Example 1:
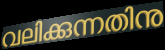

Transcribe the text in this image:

വലിക്കുന്നതിനു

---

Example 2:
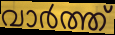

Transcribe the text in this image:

വാർത്ത്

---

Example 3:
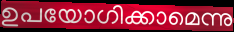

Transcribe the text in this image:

ഉപയോഗിക്കാമെന്നു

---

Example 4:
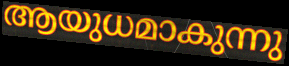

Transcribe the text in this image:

ആയുധമാകുന്നു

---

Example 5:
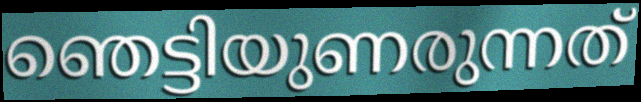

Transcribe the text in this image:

ഞെട്ടിയുണരുന്നത്